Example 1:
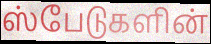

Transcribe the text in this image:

ஸ்பேடுகளின்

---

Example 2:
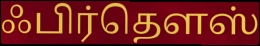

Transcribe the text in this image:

ஃபிர்தௌஸ்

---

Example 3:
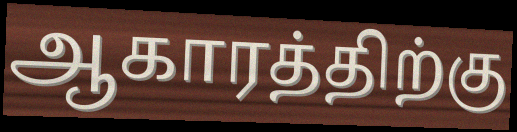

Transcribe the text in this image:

ஆகாரத்திற்கு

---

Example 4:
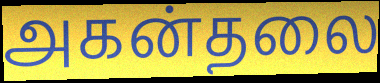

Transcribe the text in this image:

அகன்தலை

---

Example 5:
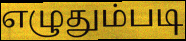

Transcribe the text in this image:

எழுதும்படி